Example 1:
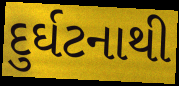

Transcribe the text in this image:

દુર્ઘટનાથી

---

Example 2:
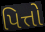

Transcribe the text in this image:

પિત્તો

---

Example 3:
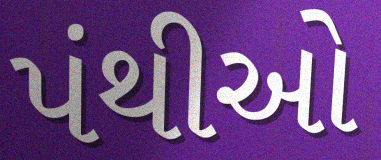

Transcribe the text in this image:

પંથીઓ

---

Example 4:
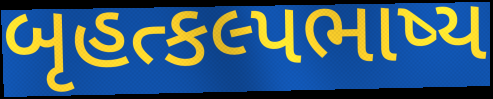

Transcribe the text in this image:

બૃહત્કલ્પભાષ્ય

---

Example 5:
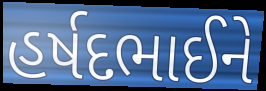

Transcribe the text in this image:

હર્ષદભાઈને